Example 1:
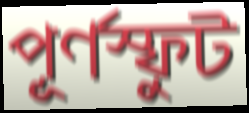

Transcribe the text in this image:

পূর্ণস্ফুট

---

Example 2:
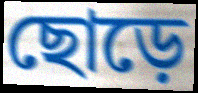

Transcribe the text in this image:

ছোড়ে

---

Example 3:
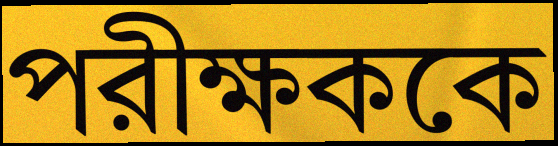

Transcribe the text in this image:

পরীক্ষককে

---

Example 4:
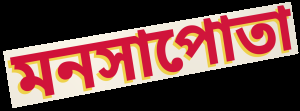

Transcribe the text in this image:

মনসাপোতা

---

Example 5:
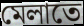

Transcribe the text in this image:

মেলাতে